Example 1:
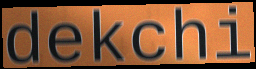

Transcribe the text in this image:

dekchi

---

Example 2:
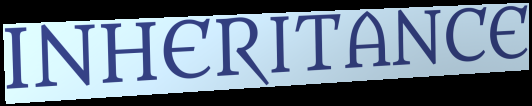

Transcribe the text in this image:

INHERITANCE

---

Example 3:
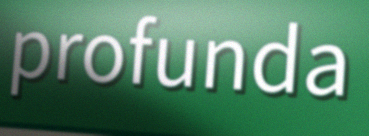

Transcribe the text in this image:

profunda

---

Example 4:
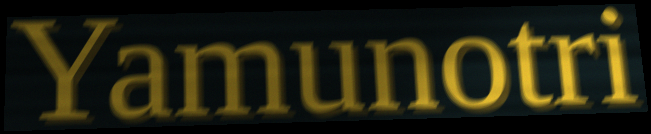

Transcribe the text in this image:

Yamunotri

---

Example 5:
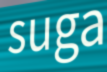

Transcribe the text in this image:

suga